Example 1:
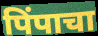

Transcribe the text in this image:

पिंपाचा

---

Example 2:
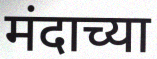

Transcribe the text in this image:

मंदाच्या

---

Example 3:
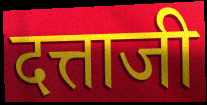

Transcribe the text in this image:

दत्ताजी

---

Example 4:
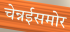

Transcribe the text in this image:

चेन्नईसमोर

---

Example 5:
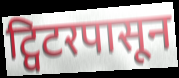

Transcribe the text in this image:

ट्विटरपासून